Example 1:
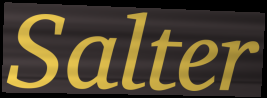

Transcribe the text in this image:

Salter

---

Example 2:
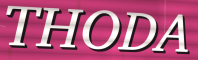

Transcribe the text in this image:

THODA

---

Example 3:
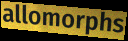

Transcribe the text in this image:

allomorphs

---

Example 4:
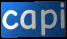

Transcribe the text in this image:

capi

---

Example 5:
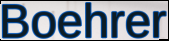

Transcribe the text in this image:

Boehrer